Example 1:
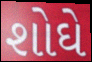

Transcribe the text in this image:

શોઘે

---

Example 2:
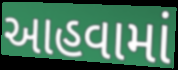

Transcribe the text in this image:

આહવામાં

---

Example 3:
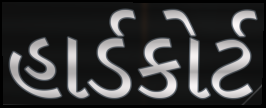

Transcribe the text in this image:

હાર્ડકોર્ટ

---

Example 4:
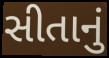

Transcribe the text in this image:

સીતાનું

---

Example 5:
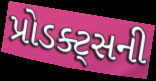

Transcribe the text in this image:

પ્રોડક્ટ્સની